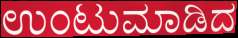
ಉಂಟುಮಾಡಿದ